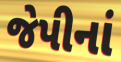
જેપીનાં